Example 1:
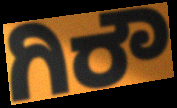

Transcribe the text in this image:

ಗಿರೌ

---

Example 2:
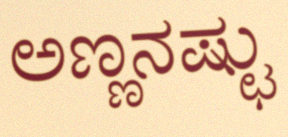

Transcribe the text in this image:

ಅಣ್ಣನಷ್ಟು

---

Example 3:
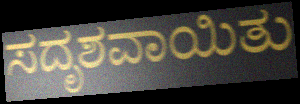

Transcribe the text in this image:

ಸದೃಶವಾಯಿತು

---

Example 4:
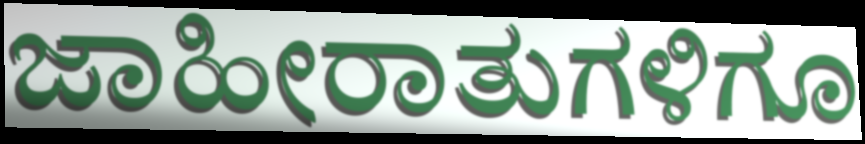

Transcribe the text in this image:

ಜಾಹೀರಾತುಗಳಿಗೂ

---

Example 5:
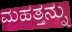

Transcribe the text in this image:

ಮಹತ್ತನ್ನು